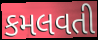
કમલવતી